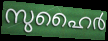
സുഹൈർ